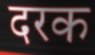
दरक